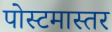
पोस्टमास्तर